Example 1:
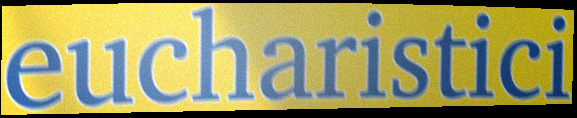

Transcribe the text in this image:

eucharistici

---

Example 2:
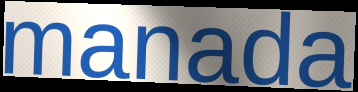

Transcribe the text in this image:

manada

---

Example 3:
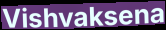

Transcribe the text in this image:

Vishvaksena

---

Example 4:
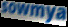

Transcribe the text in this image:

sowmya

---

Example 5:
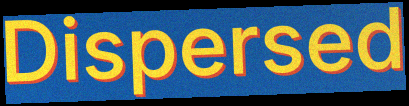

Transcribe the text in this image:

Dispersed